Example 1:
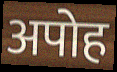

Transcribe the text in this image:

अपोह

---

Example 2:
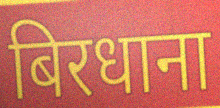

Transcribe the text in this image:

बिरधाना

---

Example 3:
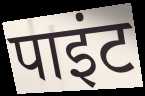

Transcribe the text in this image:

पाइंट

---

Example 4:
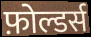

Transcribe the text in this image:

फ़ोल्डर्स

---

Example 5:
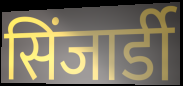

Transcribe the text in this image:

सिंजार्डी